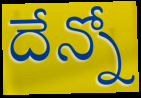
దేన్నో